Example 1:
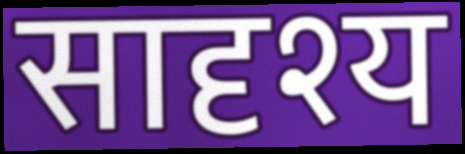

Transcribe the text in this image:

सादृश्य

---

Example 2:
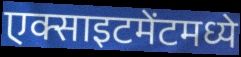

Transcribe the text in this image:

एक्साइटमेंटमध्ये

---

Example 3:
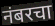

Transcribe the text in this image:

नंबरचा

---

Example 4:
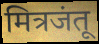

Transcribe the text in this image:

मित्रजंतू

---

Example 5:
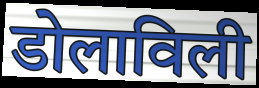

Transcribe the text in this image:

डोलाविली